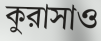
কুরাসাও